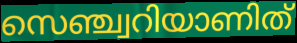
സെഞ്ച്വറിയാണിത്